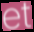
et